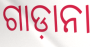
ଗାଡ଼ାନା